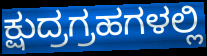
ಕ್ಷುದ್ರಗ್ರಹಗಳಲ್ಲಿ